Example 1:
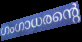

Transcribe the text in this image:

ഗംഗാധരന്റെ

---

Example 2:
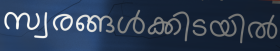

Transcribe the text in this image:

സ്വരങ്ങൾക്കിടയിൽ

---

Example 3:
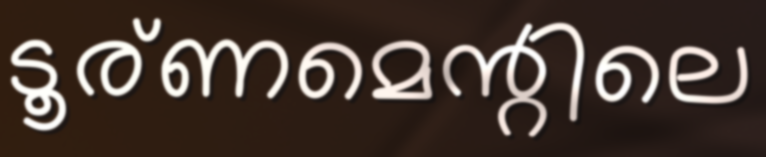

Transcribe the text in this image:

ടൂര്ണമെന്റിലെ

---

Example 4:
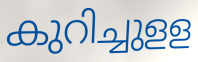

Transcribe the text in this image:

കുറിച്ചുളള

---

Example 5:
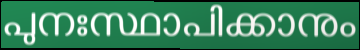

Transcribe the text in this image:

പുനഃസ്ഥാപിക്കാനും